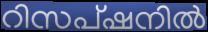
റിസപ്ഷനിൽ